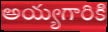
అయ్యగారికి